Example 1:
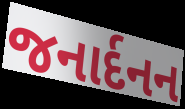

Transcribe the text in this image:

જનાર્દનન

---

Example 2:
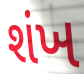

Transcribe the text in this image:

શંખ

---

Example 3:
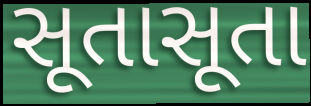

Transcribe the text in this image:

સૂતાસૂતા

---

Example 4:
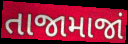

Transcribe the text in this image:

તાજામાજાં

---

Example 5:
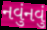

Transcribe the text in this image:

નવુંનવું